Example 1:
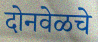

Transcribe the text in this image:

दोनवेळचे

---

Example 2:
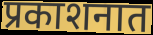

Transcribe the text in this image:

प्रकाशनात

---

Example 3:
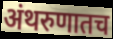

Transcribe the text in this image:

अंथरुणातच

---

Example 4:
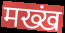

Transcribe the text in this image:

मख्खं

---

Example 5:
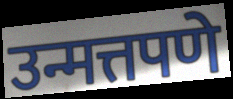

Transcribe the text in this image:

उन्मत्तपणे